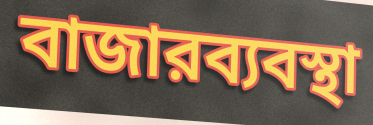
বাজারব্যবস্থা